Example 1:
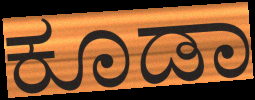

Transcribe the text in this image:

ಕೂಡಾ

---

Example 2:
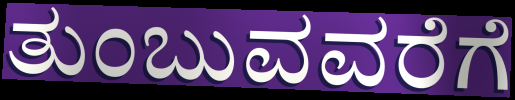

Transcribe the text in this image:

ತುಂಬುವವರೆಗೆ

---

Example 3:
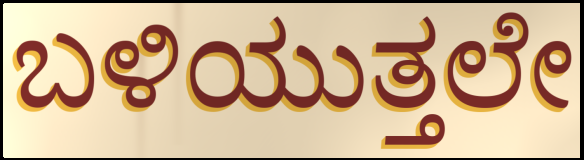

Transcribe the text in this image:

ಬಳಿಯುತ್ತಲೇ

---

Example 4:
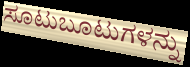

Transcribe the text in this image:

ಸೂಟುಬೂಟುಗಳನ್ನು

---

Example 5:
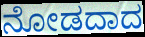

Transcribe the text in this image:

ನೋಡದಾದ